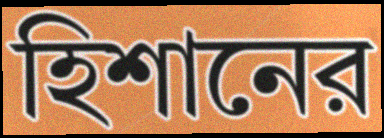
হিশানের